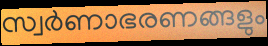
സ്വർണാഭരണങ്ങളും